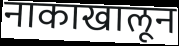
नाकाखालून